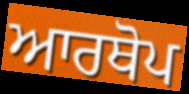
ਆਰਥੋਪ